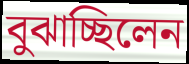
বুঝাচ্ছিলেন